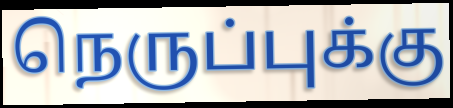
நெருப்புக்கு